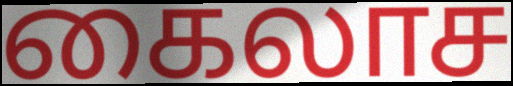
கைலாச